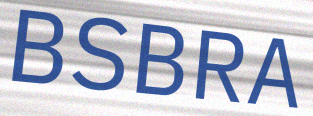
BSBRA